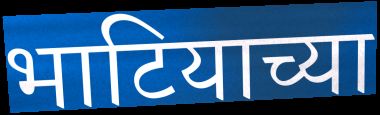
भाटियाच्या